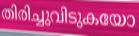
തിരിച്ചുവിടുകയോ